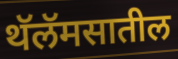
थॅलॅमसातील